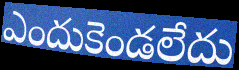
ఎందుకెండలేదు